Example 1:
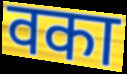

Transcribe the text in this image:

वका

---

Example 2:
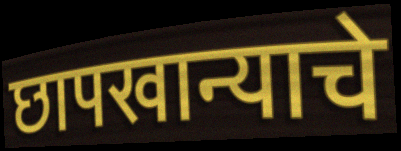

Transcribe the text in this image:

छापखान्याचे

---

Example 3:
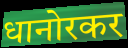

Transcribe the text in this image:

धानोरकर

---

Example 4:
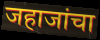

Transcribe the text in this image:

जहाजांचा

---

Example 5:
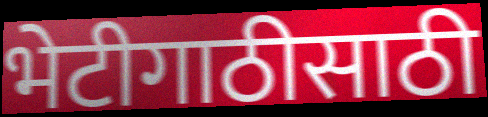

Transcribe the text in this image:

भेटीगाठीसाठी